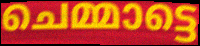
ചെമ്മാട്ടെ